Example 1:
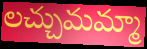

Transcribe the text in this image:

లచ్చుమమ్మా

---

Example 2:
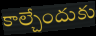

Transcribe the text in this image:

కాల్చేందుకు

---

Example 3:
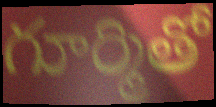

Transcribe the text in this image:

గూర్మితో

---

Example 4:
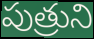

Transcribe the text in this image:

పుత్రుని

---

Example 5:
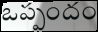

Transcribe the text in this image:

ఒప్పందం